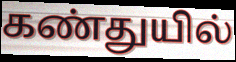
கண்துயில்